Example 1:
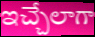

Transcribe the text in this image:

ఇచ్చేలాగా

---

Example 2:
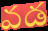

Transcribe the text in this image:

వడ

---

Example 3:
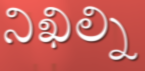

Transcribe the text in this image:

నిఖిల్ని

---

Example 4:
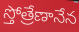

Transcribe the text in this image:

స్తోత్రేణానేన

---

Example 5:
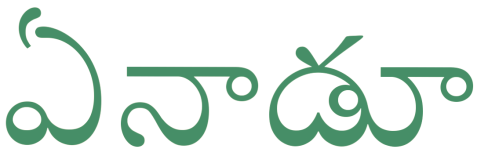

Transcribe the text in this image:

ఏనాడూ